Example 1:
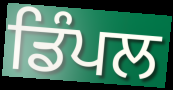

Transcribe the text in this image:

ਡਿੰਪਲ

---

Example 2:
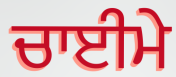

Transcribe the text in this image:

ਚਾਈਮੇ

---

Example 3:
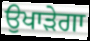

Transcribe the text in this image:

ਉਖਾੜੇਗਾ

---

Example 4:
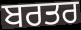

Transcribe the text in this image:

ਬਰਤਰ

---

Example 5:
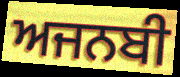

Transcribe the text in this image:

ਅਜਨਬੀ